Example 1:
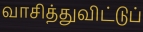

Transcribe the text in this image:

வாசித்துவிட்டுப்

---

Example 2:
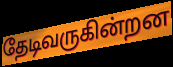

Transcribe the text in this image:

தேடிவருகின்றன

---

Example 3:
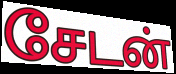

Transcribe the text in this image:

சேடன்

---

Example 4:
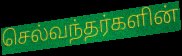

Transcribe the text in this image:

செல்வந்தர்களின்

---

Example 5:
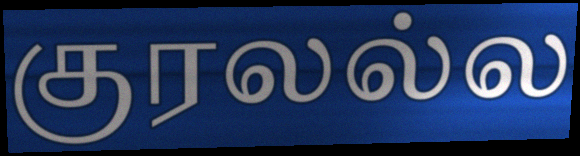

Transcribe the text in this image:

குரலல்ல